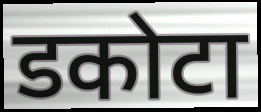
डकोटा